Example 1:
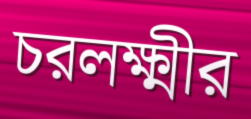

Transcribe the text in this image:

চরলক্ষ্মীর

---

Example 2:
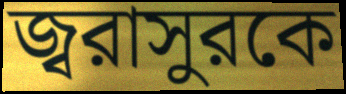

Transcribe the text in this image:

জ্বরাসুরকে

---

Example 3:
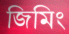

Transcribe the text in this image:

জিমিং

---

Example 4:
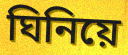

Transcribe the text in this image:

ঘিনিয়ে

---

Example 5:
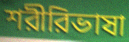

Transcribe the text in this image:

শরীরিভাষা